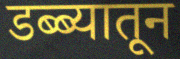
डब्ब्यातून